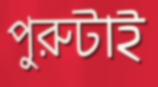
পুরুটাই